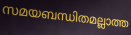
സമയബന്ധിതമല്ലാത്ത